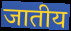
जातीय